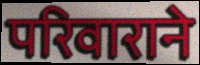
परिवाराने